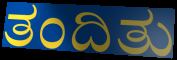
ತಂದಿತು